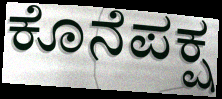
ಕೊನೆಪಕ್ಷ